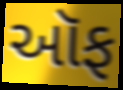
ઑફ